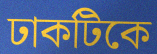
ঢাকটিকে